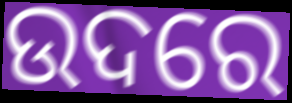
ଉଦରେ